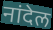
नांदेल